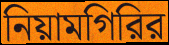
নিয়ামগিরির